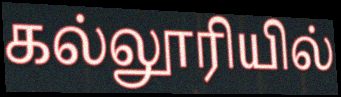
கல்லூரியில்